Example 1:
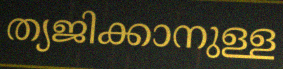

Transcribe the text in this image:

ത്യജിക്കാനുള്ള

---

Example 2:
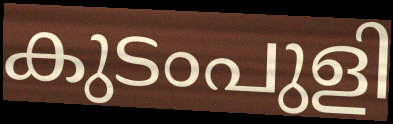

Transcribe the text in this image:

കുടംപുളി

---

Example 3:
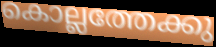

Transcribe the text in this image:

കൊല്ലത്തേക്കു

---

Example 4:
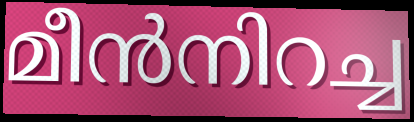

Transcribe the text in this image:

മീൻനിറച്ച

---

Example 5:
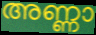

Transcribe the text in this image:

അണ്ണാ